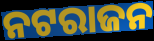
ନଟରାଜନ